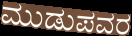
ಮುಡುಪವರ